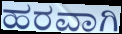
ಹರವಾಗಿ